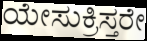
ಯೇಸುಕ್ರಿಸ್ತರೇ